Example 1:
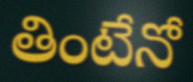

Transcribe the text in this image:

తింటేనో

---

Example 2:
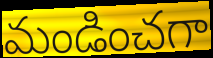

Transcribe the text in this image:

మండించగా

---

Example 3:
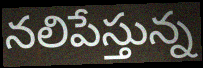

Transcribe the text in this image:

నలిపేస్తున్న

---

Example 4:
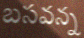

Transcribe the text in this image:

బసవన్న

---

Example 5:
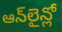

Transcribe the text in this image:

ఆన్‌లైన్లో